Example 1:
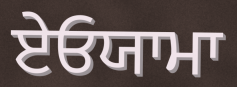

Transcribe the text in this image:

ਏਓਯਾਮਾ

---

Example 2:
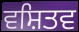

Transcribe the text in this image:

ਵਸ਼ਿਤਵ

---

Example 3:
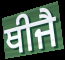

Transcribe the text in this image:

ਥੀਜੈ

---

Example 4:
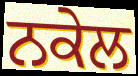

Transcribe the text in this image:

ਨਕੇਲ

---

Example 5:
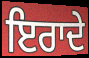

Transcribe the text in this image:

ਇਰਾਦੇ